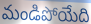
మండిపోయేది